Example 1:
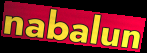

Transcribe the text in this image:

nabalun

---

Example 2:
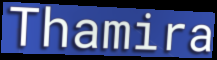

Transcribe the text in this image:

Thamira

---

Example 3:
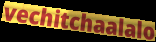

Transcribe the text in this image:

vechitchaalalo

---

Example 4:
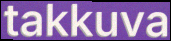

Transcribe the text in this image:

takkuva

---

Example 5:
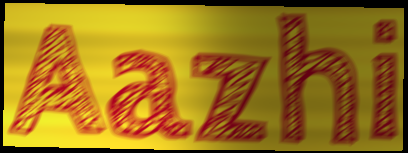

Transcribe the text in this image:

Aazhi